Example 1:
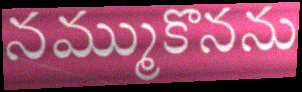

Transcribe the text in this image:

నమ్ముకొనను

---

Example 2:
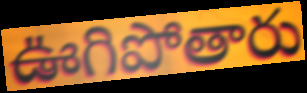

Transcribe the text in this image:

ఊగిపోతారు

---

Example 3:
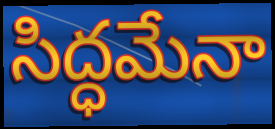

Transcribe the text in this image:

సిద్ధమేనా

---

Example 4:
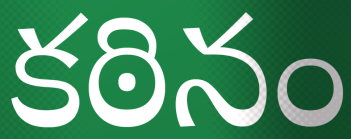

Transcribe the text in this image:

కఠినం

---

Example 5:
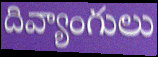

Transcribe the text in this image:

దివ్యాంగులు